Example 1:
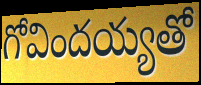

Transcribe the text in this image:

గోవిందయ్యతో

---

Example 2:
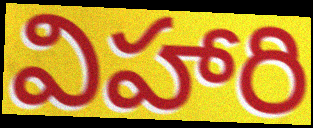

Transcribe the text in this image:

విహారి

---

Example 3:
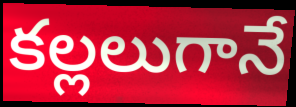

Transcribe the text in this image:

కల్లలుగానే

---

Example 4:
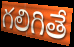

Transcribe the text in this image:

గలిగితే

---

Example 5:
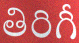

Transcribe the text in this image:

తిరిగీ